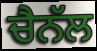
ਚੈਨੱਲ